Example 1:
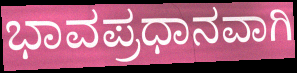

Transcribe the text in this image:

ಭಾವಪ್ರಧಾನವಾಗಿ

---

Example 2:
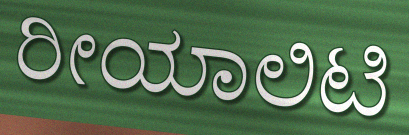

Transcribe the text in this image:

ರೀಯಾಲಿಟಿ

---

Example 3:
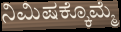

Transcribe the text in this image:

ನಿಮಿಷಕ್ಕೊಮ್ಮೆ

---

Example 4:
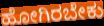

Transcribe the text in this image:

ಹೋಗಿರಬೇಕು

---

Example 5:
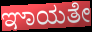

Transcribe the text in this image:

ಞಾಯತೇ